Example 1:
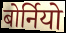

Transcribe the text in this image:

बोर्नियो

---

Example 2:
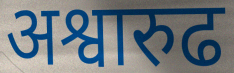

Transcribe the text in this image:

अश्वारुढ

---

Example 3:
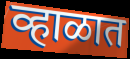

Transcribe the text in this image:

व्हाळात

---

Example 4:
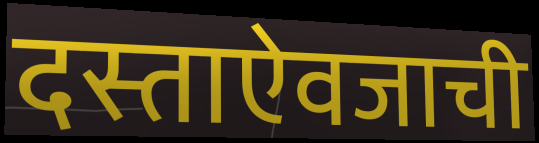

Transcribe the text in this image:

दस्ताऐवजाची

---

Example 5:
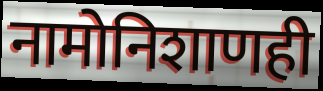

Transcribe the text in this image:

नामोनिशाणही